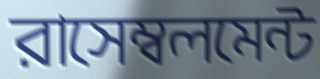
রাসেম্বলমেন্ট